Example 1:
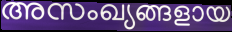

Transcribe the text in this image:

അസംഖ്യങ്ങളായ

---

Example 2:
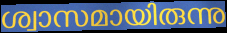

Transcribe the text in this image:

ശ്വാസമായിരുന്നു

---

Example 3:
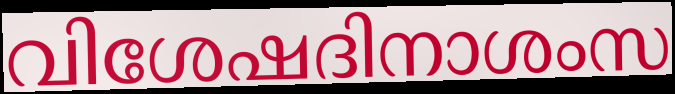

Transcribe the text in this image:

വിശേഷദിനാശംസ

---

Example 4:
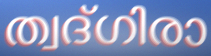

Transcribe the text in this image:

ത്വദ്ഗിരാ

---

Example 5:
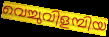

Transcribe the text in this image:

വെച്ചുവിളമ്പിയ